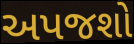
અપજશો